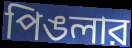
পিঙলার